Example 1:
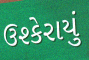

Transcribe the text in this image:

ઉશ્કેરાયું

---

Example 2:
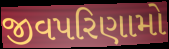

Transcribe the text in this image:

જીવપરિણામો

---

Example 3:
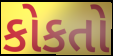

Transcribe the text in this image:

કોકતો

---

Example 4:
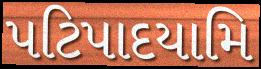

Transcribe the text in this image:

પટિપાદયામિ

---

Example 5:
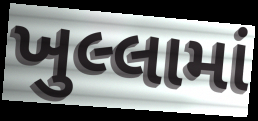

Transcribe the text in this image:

ખુલ્લામાં